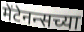
मेंटेनन्सच्या